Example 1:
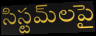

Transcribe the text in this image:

సిస్టమ్‌లపై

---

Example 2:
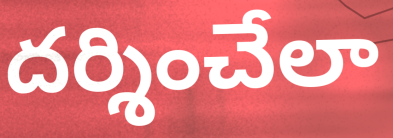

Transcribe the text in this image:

దర్శించేలా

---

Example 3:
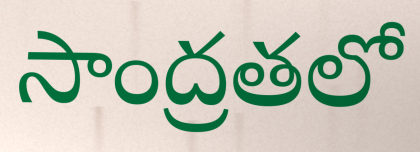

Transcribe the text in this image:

సాంద్రతలో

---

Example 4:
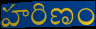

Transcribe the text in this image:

హరిణం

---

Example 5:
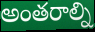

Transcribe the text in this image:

అంతరాల్ని